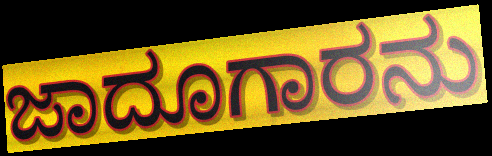
ಜಾದೂಗಾರನು